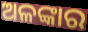
ଅଳଙ୍କାର